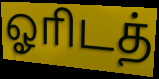
ஓரிடத்